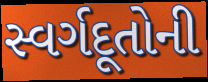
સ્વર્ગદૂતોની